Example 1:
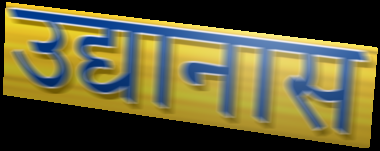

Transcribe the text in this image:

उद्यानास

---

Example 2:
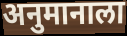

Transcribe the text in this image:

अनुमानाला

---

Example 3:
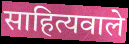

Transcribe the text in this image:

साहित्यवाले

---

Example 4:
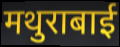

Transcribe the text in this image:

मथुराबाई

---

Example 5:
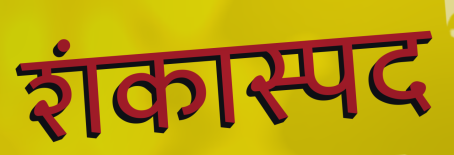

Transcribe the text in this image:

शंकास्पद